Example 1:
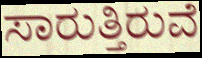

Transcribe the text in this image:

ಸಾರುತ್ತಿರುವೆ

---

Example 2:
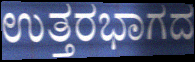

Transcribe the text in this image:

ಉತ್ತರಭಾಗದ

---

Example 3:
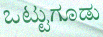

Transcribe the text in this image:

ಒಟ್ಟುಗೂಡು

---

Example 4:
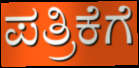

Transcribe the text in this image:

ಪತ್ರಿಕೆಗೆ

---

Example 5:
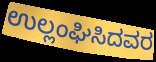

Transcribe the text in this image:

ಉಲ್ಲಂಘಿಸಿದವರ